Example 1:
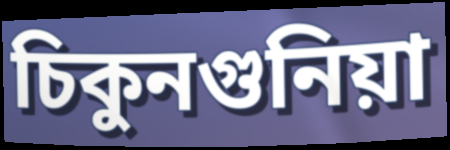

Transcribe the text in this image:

চিকুনগুনিয়া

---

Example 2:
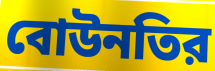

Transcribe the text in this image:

বোউনতির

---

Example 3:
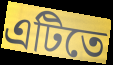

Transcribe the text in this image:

এটিতে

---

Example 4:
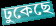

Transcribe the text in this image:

ঢুকেছে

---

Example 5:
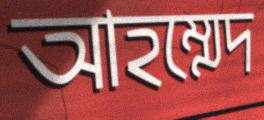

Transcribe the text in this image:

আহম্মেদ